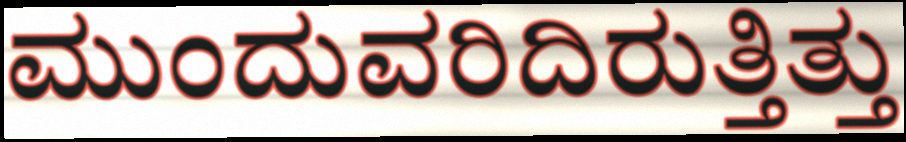
ಮುಂದುವರಿದಿರುತ್ತಿತ್ತು